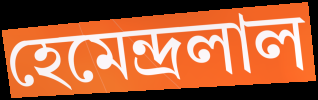
হেমেন্দ্রলাল